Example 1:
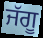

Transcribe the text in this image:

ਜੱਗੂ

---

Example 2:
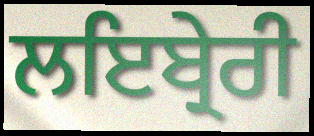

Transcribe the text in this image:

ਲਇਬ੍ਰੇਰੀ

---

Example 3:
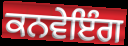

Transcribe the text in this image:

ਕਨਵੇਇੰਗ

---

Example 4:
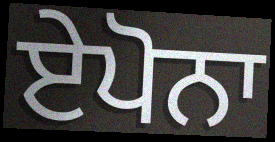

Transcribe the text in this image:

ਏਪੋਨਾ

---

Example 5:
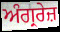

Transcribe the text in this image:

ਅੰਗ੍ਰਰੇਜ਼